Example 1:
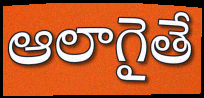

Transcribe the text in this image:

ఆలాగైతే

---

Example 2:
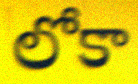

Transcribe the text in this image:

లోకా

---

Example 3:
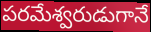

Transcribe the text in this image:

పరమేశ్వరుడుగానే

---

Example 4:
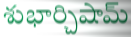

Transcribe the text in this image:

శుభార్చిషామ్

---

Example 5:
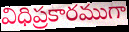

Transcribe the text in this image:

విధిప్రకారముగా